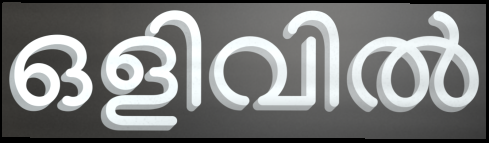
ഒളിവിൽ